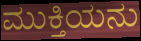
ಮುಕ್ತಿಯನು